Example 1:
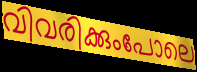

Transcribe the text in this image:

വിവരിക്കുംപോലെ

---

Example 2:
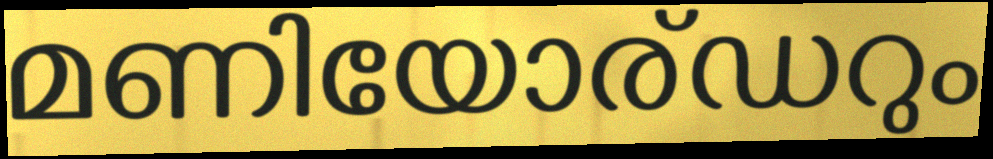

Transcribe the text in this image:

മണിയോര്ഡറും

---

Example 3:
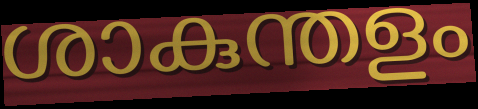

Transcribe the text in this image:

ശാകുന്തളം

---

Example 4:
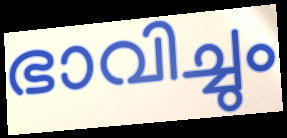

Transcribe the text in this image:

ഭാവിച്ചും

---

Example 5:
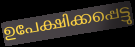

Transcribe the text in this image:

ഉപേക്ഷിക്കപ്പെട്ടു